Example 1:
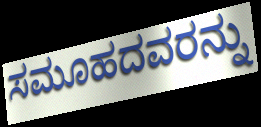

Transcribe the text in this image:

ಸಮೂಹದವರನ್ನು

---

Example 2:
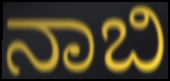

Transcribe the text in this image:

ನಾಬಿ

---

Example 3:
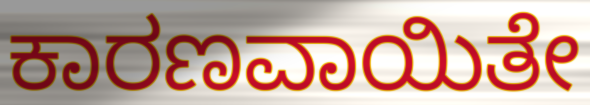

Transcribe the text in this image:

ಕಾರಣವಾಯಿತೇ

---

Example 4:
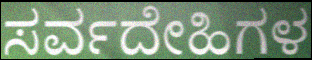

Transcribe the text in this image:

ಸರ್ವದೇಹಿಗಳ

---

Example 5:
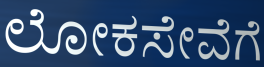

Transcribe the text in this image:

ಲೋಕಸೇವೆಗೆ